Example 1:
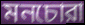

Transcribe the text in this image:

মনচোরা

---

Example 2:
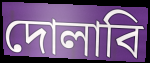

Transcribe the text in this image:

দোলাবি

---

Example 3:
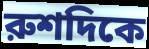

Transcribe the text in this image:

রুশদিকে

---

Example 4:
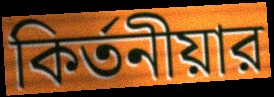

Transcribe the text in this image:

কির্তনীয়ার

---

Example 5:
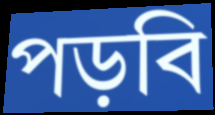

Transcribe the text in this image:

পড়বি